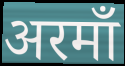
अरमाँ